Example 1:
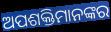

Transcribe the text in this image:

ଅପଶକ୍ତିମାନଙ୍କର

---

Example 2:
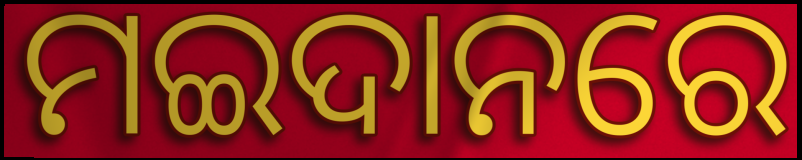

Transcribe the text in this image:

ମଇଦାନରେ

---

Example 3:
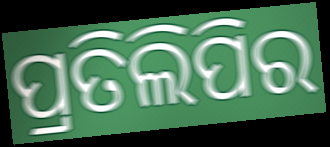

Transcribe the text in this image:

ପ୍ରତିଲିପିର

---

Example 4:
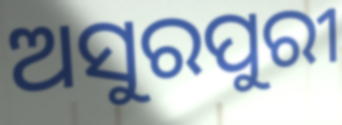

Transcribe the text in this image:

ଅସୁରପୁରୀ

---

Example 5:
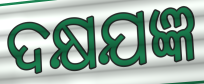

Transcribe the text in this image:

ଦକ୍ଷଯଜ୍ଞ